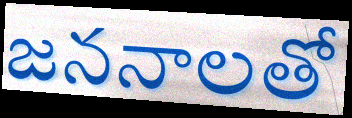
జననాలతో